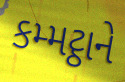
કમ્મટ્ઠાને